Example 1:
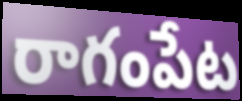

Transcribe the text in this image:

రాగంపేట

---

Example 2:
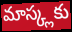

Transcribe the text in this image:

మాస్క్లకు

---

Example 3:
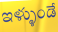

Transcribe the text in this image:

ఇళ్ళుండే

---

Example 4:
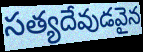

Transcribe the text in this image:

సత్యదేవుడవైన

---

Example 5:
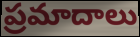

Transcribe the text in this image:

ప్రమాదాలు